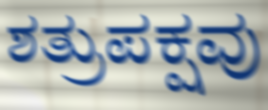
ಶತ್ರುಪಕ್ಷವು